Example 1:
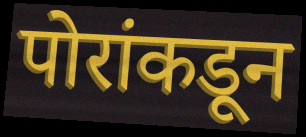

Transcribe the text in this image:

पोरांकडून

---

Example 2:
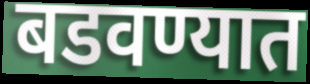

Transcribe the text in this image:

बडवण्यात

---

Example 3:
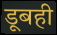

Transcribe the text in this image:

डूबही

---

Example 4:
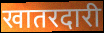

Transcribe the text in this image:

खातरदारी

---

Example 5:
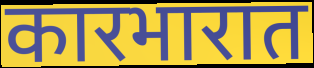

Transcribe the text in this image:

कारभारात